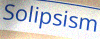
Solipsism